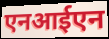
एनआईएन